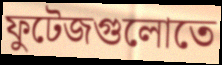
ফুটেজগুলোতে